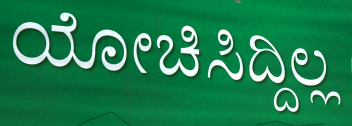
ಯೋಚಿಸಿದ್ದಿಲ್ಲ